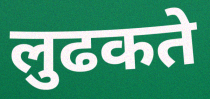
लुढकते